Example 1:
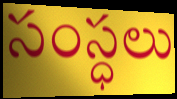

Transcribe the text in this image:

సంస్ధలు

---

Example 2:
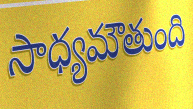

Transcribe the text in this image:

సాధ్యమౌతుంది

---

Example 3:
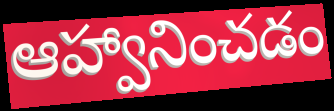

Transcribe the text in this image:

ఆహ్వానించడం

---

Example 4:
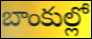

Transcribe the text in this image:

బాంకుల్లో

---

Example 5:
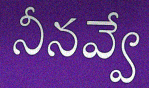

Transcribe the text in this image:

నీనవ్వే